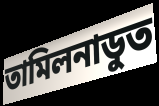
তামিলনাডুত